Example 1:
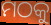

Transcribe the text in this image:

ମଠକୁ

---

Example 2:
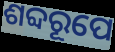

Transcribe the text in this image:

ଶବ୍ଦରୂପେ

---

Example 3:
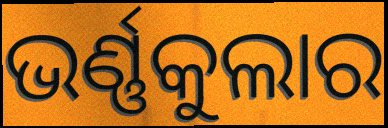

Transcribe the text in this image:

ଭର୍ଣ୍ଣକୁଲାର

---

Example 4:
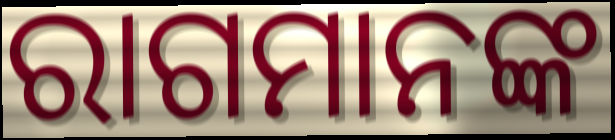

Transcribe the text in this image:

ରାଗମାନଙ୍କ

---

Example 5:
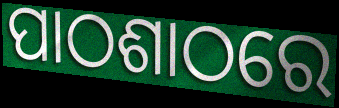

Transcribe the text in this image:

ପାଠଶାଠରେ